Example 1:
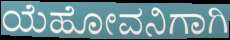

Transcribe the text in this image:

ಯೆಹೋವನಿಗಾಗಿ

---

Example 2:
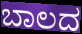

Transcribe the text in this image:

ಬಾಲದ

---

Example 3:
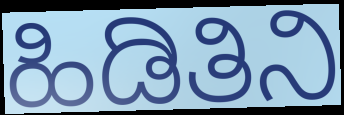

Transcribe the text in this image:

ಹಿಡಿತಿನಿ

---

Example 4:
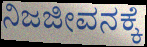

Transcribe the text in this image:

ನಿಜಜೀವನಕ್ಕೆ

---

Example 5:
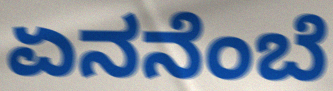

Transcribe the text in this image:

ಏನನೆಂಬೆ